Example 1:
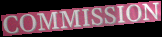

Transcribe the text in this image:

COMMISSION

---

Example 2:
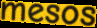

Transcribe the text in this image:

mesos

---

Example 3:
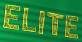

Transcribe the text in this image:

ELITE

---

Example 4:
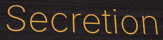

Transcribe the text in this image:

Secretion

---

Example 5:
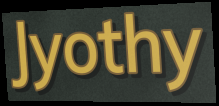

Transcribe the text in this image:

Jyothy